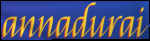
annadurai